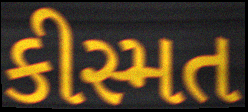
કીસ્મત